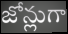
జోన్లుగా